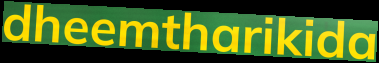
dheemtharikida